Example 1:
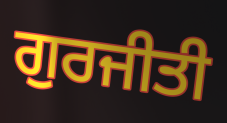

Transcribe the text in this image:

ਗੁਰਜੀਤੀ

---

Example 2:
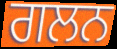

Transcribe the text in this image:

ਗਲਨ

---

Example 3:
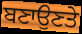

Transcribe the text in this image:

ਬਣਾਉਣਤੇ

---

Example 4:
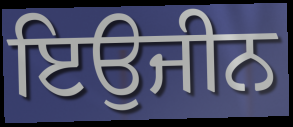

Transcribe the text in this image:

ਇਉਜੀਨ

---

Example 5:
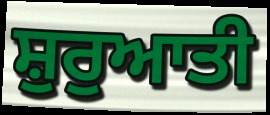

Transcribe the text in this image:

ਸ਼ੁਰੁਆਤੀ